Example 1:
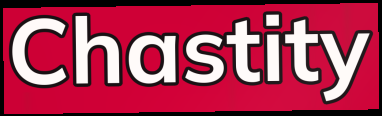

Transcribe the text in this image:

Chastity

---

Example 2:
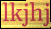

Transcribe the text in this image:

lkjhj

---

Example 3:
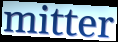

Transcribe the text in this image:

mitter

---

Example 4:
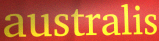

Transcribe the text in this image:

australis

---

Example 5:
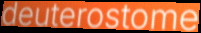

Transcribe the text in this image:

deuterostome